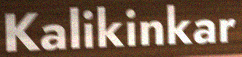
Kalikinkar